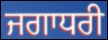
ਜਗਾਧਰੀ